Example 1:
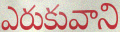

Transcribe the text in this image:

ఎరుకువాని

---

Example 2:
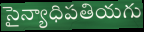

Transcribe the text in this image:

సైన్యాధిపతియగు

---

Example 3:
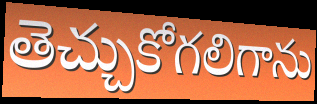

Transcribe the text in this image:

తెచ్చుకోగలిగాను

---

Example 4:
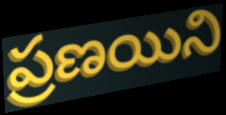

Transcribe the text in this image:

ప్రణయిని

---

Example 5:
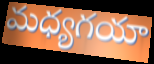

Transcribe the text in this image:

మధ్యగయా